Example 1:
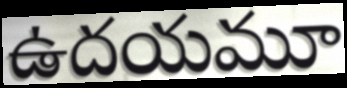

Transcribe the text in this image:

ఉదయమూ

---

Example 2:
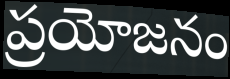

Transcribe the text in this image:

ప్రయోజనం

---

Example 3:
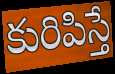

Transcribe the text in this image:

కురిపిస్తే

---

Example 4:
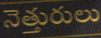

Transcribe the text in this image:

నెత్తురులు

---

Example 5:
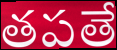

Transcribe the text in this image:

తపతే